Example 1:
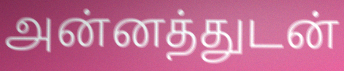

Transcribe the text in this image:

அன்னத்துடன்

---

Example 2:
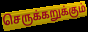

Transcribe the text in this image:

செருக்கறுக்கும்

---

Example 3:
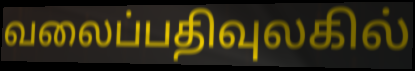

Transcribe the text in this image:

வலைப்பதிவுலகில்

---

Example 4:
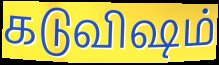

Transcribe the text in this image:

கடுவிஷம்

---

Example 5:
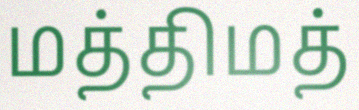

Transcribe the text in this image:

மத்திமத்